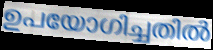
ഉപയോഗിച്ചതിൽ